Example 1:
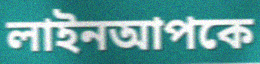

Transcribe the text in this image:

লাইনআপকে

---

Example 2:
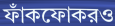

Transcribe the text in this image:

ফাঁকফোকরও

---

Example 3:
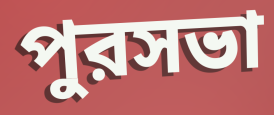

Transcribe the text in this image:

পুরসভা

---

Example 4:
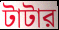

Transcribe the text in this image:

টাটার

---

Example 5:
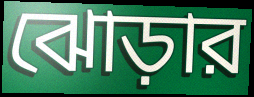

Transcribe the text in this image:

ঝোড়ার